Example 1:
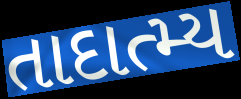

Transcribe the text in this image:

તાદાત્મ્ય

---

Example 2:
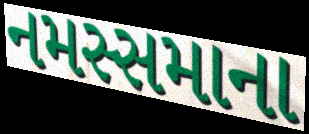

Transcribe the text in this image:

નમસ્સમાના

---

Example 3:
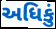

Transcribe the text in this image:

અધિકું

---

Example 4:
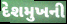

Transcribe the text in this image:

દેશમુખની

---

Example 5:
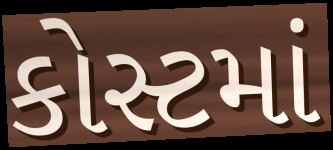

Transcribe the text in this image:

કોસ્ટમાં